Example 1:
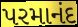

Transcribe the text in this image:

પરમાનંદ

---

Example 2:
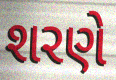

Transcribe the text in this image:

શરણે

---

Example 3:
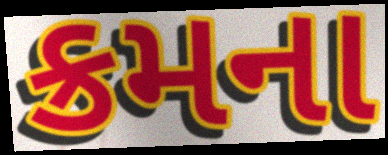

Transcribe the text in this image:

ક્રમના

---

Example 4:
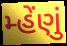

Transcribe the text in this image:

મ્હેંણું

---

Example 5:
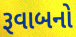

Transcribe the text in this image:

રૂવાબનો